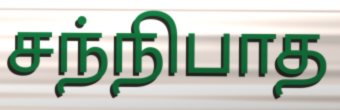
சந்நிபாத